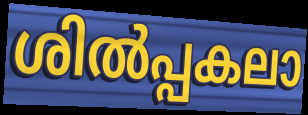
ശിൽപ്പകലാ